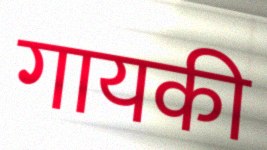
गायकी